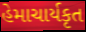
હેમાચાર્યકૃત